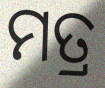
ମତ୍ର